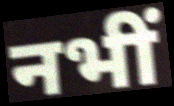
नभीं